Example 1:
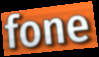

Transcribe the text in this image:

fone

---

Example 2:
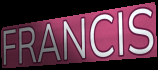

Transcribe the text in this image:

FRANCIS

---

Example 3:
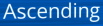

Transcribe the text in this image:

Ascending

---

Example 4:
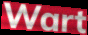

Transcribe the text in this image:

Wart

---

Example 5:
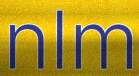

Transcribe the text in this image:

nlm